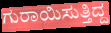
ಗುರಾಯಿಸುತ್ತಿದ್ದ